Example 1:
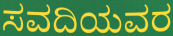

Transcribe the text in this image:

ಸವದಿಯವರ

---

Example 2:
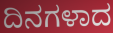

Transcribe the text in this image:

ದಿನಗಳಾದ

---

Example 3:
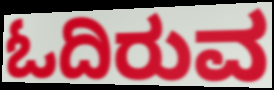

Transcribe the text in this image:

ಓದಿರುವ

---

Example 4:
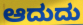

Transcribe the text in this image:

ಆದುದು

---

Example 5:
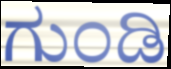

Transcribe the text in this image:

ಗುಂಡಿ